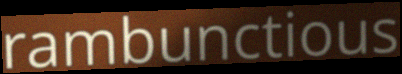
rambunctious